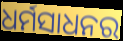
ଧର୍ମସାଧନର